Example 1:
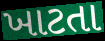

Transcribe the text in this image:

ખાટતા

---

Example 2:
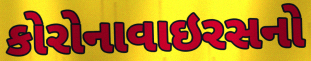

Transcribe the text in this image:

કોરોનાવાઇરસનો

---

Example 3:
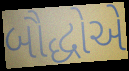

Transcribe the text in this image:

બૌદ્ધોએ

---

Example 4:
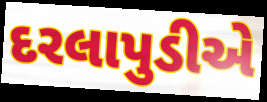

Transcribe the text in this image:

દરલાપુડીએ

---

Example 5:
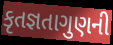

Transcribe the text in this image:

કૃતજ્ઞતાગુણની